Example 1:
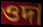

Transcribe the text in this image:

ওদা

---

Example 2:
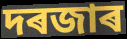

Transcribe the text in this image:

দৰজাৰ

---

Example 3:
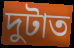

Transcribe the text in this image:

দুটাত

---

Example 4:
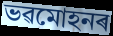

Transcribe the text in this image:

ভৱমোহনৰ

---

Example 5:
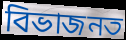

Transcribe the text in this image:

বিভাজনত